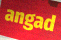
angad